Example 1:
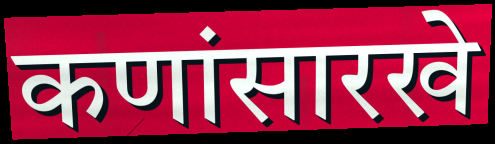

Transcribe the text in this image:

कणांसारखे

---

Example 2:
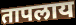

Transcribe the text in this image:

तापलाय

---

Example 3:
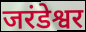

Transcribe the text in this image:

जरंडेश्वर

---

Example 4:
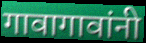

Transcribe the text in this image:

गावागावांनी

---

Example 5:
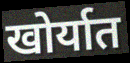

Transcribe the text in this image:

खोर्यात